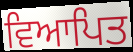
ਵਿਆਪਿਤ